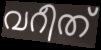
വറീത്